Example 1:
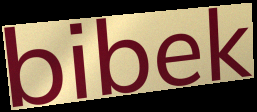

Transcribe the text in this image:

bibek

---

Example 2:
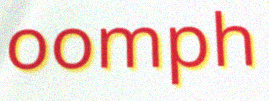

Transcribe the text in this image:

oomph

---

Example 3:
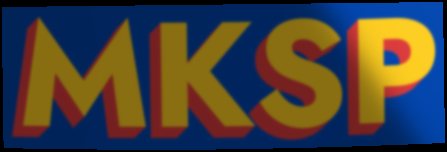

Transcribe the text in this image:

MKSP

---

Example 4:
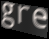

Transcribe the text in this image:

gre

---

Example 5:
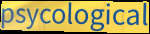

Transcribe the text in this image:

psycological